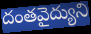
దంతవైద్యుని